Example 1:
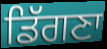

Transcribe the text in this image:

ਡਿੱਗਣਾ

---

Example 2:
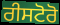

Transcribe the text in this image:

ਰੀਸਟੋਰੋ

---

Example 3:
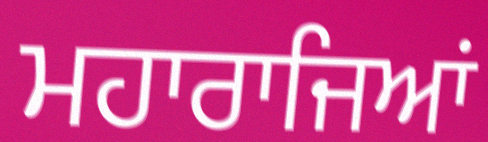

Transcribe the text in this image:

ਮਹਾਰਾਜਿਆਂ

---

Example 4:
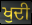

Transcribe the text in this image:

ਖੁਦੀ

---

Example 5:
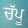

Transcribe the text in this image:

ਚੱਪੂ